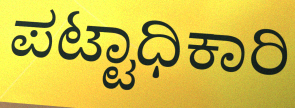
ಪಟ್ಟಾಧಿಕಾರಿ